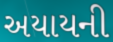
અયાયની